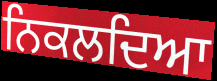
ਨਿਕਲਦਿਆ